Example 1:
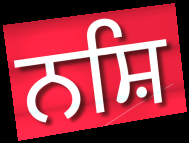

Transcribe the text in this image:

ਨਸ਼ਿ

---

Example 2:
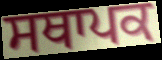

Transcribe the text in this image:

ਸਥਾਪਕ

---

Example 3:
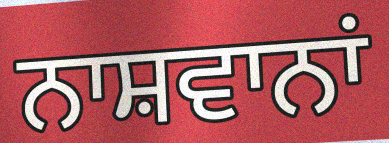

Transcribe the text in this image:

ਨਾਸ਼ਵਾਨਾਂ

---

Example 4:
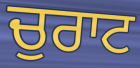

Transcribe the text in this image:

ਚੁਰਾਟ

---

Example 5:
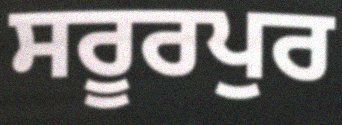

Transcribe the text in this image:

ਸਰੂਰਪੁਰ